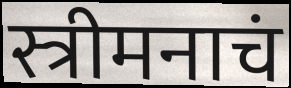
स्त्रीमनाचं